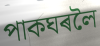
পাকঘৰলৈ